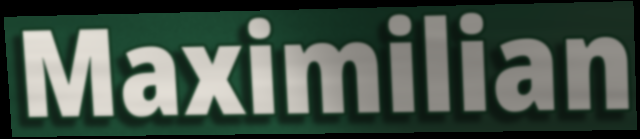
Maximilian